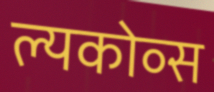
ल्यकोव्स